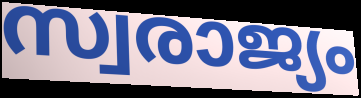
സ്വരാജ്യം